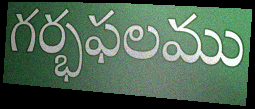
గర్భఫలము